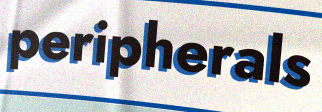
peripherals